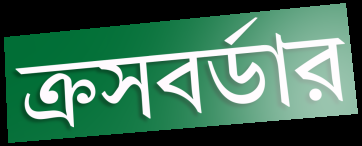
ক্রসবর্ডার